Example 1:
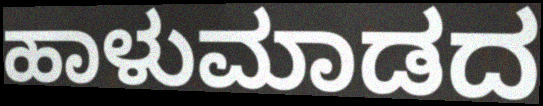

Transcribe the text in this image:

ಹಾಳುಮಾಡದ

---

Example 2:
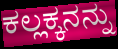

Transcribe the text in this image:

ಕಲ್ಲಕ್ಕನನ್ನು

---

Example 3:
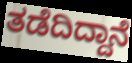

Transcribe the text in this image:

ತಡೆದಿದ್ದಾನೆ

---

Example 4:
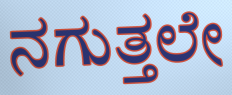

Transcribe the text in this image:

ನಗುತ್ತಲೇ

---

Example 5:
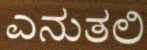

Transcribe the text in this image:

ಎನುತಲಿ